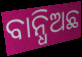
ବାନ୍ଧିଅଛ